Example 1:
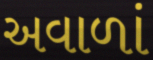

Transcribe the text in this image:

અવાળાં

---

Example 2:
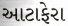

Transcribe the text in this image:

આટાફેરા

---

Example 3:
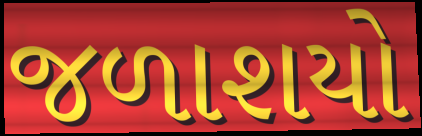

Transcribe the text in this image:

જળાશયો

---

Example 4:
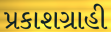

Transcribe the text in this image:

પ્રકાશગ્રાહી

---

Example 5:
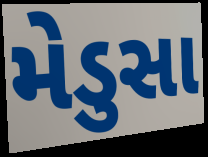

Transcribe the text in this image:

મેડુસા